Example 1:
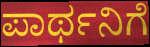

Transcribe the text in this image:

ಪಾರ್ಥನಿಗೆ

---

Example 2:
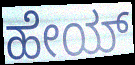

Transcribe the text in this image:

ಹೇಯ್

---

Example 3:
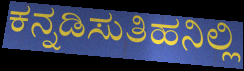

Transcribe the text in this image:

ಕನ್ನಡಿಸುತಿಹನಿಲ್ಲಿ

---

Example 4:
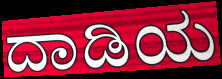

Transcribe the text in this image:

ದಾಡಿಯ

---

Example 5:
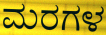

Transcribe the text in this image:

ಮರಗಳ